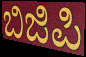
ಬಿಜಿಪಿ